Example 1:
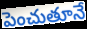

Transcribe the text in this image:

పెంచుతూనే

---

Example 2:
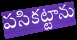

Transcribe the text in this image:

పసికట్టాను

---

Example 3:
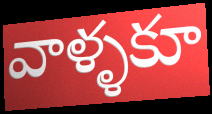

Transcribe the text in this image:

వాళ్ళకూ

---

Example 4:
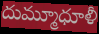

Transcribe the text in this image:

దుమ్మూధూళీ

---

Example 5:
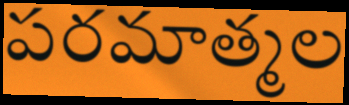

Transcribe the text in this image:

పరమాత్మల